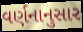
વર્ણનાનુસાર